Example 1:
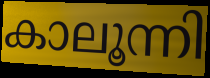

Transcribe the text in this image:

കാലൂന്നി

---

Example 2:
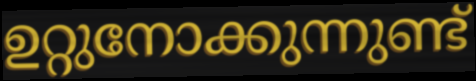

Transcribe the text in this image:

ഉറ്റുനോക്കുന്നുണ്ട്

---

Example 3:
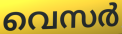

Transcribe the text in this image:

വെസർ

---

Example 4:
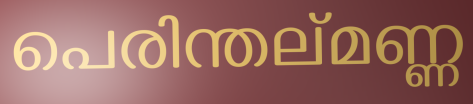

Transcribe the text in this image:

പെരിന്തല്മണ്ണ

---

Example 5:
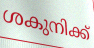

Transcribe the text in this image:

ശകുനിക്ക്